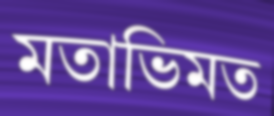
মতাভিমত